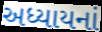
અધ્યાયનાં